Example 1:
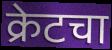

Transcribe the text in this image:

क्रेटचा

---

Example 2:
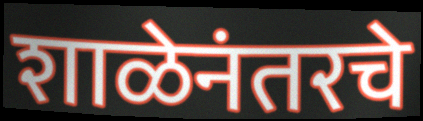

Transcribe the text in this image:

शाळेनंतरचे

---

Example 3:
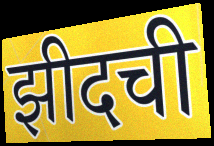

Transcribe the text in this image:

झीदची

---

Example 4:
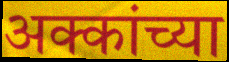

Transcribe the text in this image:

अक्कांच्या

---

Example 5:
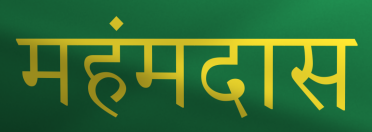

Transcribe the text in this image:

महंमदास